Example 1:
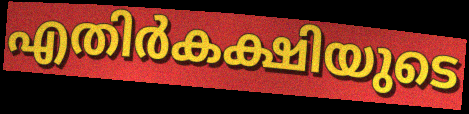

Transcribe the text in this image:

എതിർകക്ഷിയുടെ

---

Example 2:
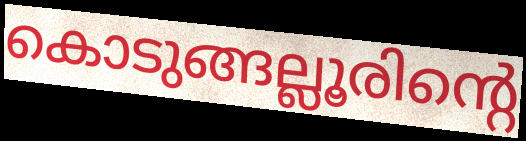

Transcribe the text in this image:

കൊടുങ്ങല്ലൂരിന്റെ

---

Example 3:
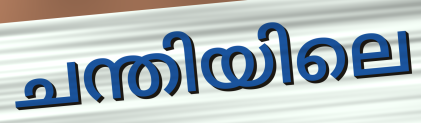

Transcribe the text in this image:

ചന്തിയിലെ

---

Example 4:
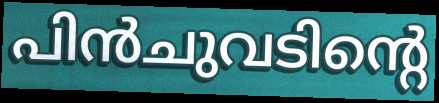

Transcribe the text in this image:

പിൻചുവടിന്റെ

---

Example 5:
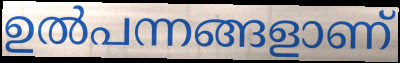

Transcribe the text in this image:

ഉൽപന്നങ്ങളാണ്